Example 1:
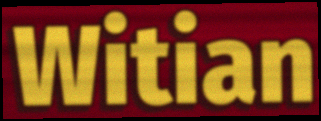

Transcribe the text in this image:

Witian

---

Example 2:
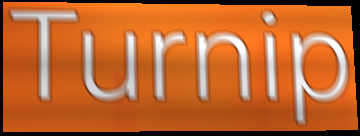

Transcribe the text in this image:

Turnip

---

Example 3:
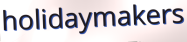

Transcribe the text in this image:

holidaymakers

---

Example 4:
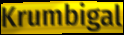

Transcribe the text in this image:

Krumbigal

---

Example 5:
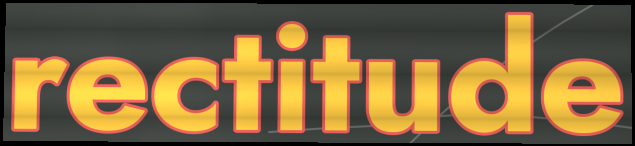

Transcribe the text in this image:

rectitude